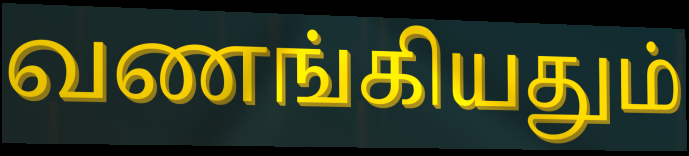
வணங்கியதும்